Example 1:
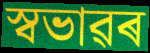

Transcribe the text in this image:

স্বভাৱৰ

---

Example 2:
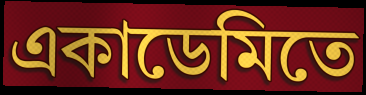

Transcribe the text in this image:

একাডেমিতে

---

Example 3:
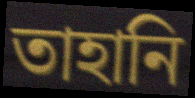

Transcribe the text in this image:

তাহানি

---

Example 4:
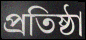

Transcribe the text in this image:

প্ৰতিষ্ঠা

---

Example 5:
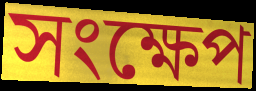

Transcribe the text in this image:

সংক্ষেপ